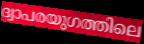
ദ്വാപരയുഗത്തിലെ